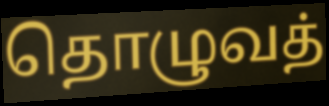
தொழுவத்